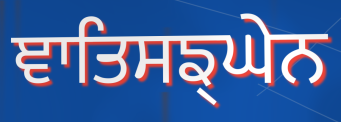
ਞਾਤਿਸਙ੍ਘੇਨ